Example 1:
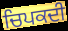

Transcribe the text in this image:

ਚਿਪਕਦੀ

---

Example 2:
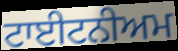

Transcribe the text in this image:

ਟਾਈਟਨੀਅਮ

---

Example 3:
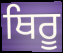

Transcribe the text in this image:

ਥਿਰੂ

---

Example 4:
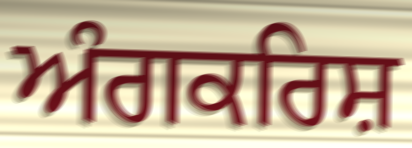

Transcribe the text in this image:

ਅੰਗਕਰਿਸ਼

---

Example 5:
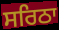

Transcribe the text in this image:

ਸਰਿਠਾ